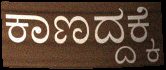
ಕಾಣದ್ದಕ್ಕೆ